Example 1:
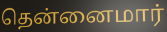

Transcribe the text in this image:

தென்னைமார்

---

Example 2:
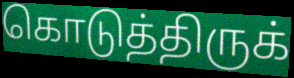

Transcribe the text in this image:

கொடுத்திருக்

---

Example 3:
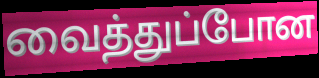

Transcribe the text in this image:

வைத்துப்போன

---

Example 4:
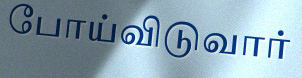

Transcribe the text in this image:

போய்விடுவார்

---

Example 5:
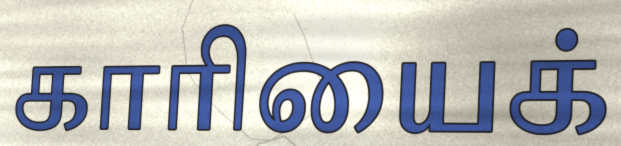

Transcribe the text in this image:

காரியைக்